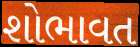
શોભાવત